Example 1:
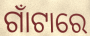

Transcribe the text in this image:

ଗାଁଟାରେ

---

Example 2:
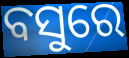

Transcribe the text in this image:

ବସୁରେ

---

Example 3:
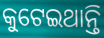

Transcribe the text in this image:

କୁଟେଇଥାନ୍ତି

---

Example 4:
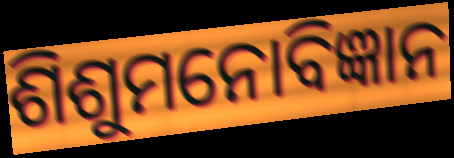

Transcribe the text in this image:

ଶିଶୁମନୋବିଜ୍ଞାନ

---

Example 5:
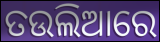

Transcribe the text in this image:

ତଉଲିଆରେ